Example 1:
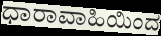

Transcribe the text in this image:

ಧಾರಾವಾಹಿಯಿಂದ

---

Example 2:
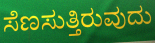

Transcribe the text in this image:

ಸೆಣಸುತ್ತಿರುವುದು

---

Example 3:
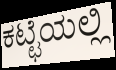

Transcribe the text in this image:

ಕಟ್ಟೆಯಲ್ಲಿ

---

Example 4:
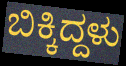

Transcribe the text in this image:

ಬಿಕ್ಕಿದ್ದಳು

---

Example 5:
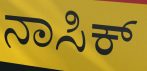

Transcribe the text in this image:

ನಾಸಿಕ್